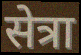
सेत्रा